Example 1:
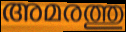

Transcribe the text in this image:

അമരത്തു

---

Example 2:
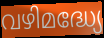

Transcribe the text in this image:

വഴിമദ്ധ്യേ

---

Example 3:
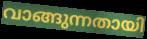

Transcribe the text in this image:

വാങ്ങുന്നതായി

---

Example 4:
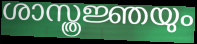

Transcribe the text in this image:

ശാസ്ത്രജ്ഞയും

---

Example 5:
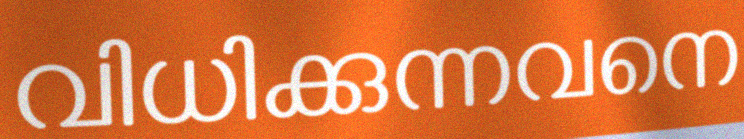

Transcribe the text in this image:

വിധിക്കുന്നവനെ